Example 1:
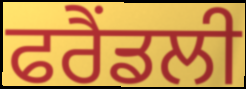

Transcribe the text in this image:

ਫਰੈਂਡਲੀ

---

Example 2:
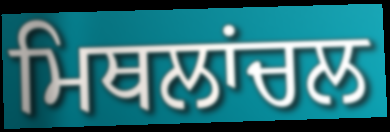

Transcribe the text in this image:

ਮਿਥਲਾਂਚਲ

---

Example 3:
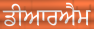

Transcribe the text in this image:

ਡੀਆਰਐਮ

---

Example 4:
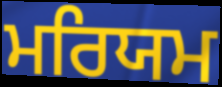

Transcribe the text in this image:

ਮਰਿਯਮ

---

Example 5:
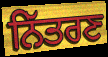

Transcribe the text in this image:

ਨਿੱਤਰਣ